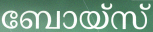
ബോയ്സ്